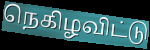
நெகிழவிட்டு